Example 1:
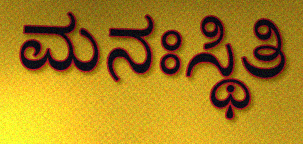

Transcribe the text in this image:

ಮನಃಸ್ಥಿತಿ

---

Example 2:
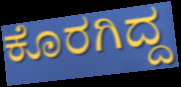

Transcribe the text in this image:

ಕೊರಗಿದ್ದ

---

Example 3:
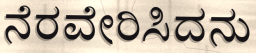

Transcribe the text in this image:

ನೆರವೇರಿಸಿದನು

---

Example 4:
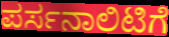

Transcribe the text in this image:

ಪರ್ಸನಾಲಿಟಿಗೆ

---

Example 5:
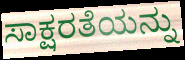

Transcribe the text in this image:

ಸಾಕ್ಷರತೆಯನ್ನು